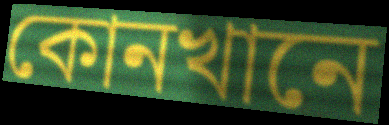
কোনখানে